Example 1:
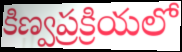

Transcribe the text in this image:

కిణ్వప్రక్రియలో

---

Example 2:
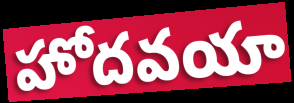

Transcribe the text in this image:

హోదవయా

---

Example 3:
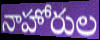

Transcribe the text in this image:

నాహోరుల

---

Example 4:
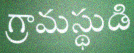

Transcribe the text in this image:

గ్రామస్థుడి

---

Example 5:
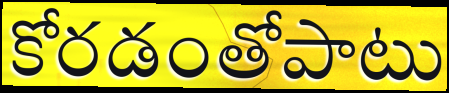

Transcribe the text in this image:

కోరడంతోపాటు